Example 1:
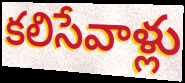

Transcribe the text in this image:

కలిసేవాళ్లు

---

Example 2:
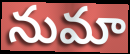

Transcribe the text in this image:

నుమా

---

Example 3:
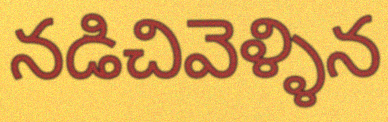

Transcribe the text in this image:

నడిచివెళ్ళిన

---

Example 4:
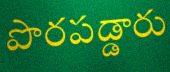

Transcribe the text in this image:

పొరపడ్డారు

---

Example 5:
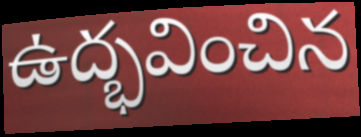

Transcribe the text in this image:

ఉద్భవించిన